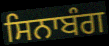
ਸਿਨਾਬੰਗ